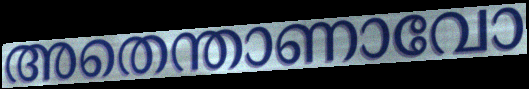
അതെന്താണാവോ